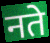
नते